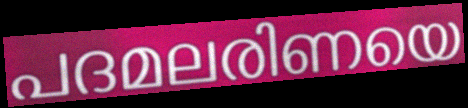
പദമലരിണയെ